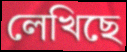
লেখিছে